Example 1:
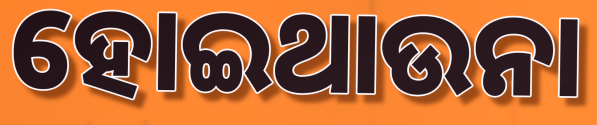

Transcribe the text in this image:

ହୋଇଥାଉନା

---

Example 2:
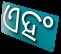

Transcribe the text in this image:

ଏହଂ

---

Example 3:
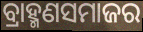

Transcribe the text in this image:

ବ୍ରାହ୍ମଣସମାଜର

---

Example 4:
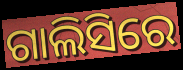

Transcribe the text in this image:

ଗାଲିସିରେ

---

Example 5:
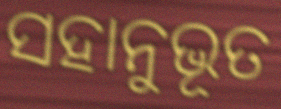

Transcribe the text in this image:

ସହାନୁଭୂତ